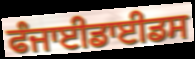
ਫੰਜਾਈਡਾਈਡਸ